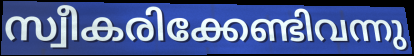
സ്വീകരിക്കേണ്ടിവന്നു